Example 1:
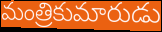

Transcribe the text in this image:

మంత్రికుమారుడు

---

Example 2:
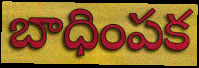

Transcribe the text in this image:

బాధింపక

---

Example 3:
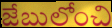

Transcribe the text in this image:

జేబులోంచి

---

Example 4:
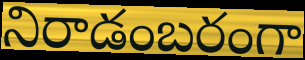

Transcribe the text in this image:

నిరాడంబరంగా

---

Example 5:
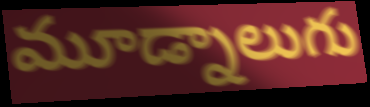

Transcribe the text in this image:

మూడ్నాలుగు